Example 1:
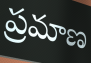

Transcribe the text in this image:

ప్రమాణ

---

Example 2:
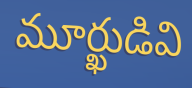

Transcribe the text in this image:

మూర్ఖుడివి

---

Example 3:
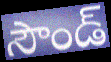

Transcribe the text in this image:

సౌండ్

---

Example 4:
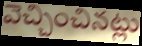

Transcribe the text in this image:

వెచ్చించినట్లు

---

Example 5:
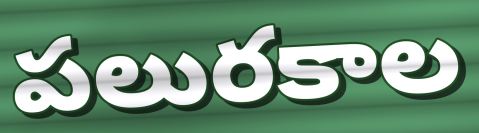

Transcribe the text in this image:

పలురకాల